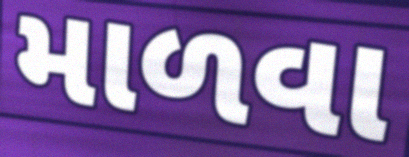
માળવા